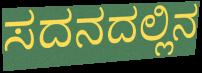
ಸದನದಲ್ಲಿನ